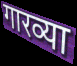
गारव्या